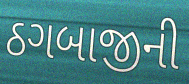
ઠગબાજીની